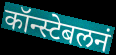
कॉन्स्टेबलनं